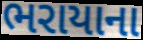
ભરાયાના